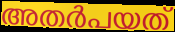
അതർപയത്